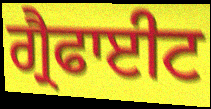
ਗ੍ਰੈਫਾਈਟ